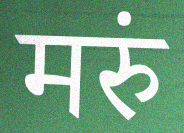
मरुं